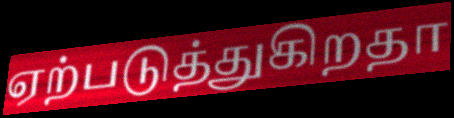
ஏற்படுத்துகிறதா